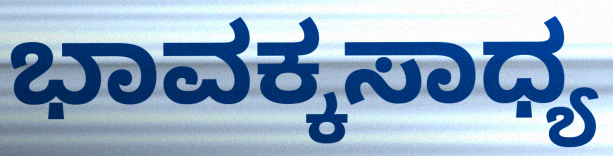
ಭಾವಕ್ಕಸಾಧ್ಯ